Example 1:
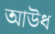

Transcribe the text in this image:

আউধ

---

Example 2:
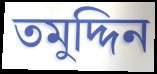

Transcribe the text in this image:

তমুদ্দিন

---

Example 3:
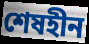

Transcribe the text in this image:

শেষহীন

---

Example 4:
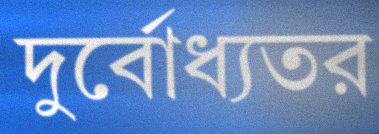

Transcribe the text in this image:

দুর্বোধ্যতর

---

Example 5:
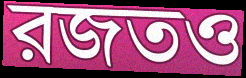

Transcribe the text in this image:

রজতও